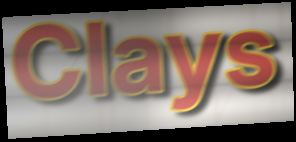
Clays